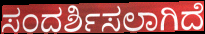
ಸಂದರ್ಶಿಸಲಾಗಿದೆ